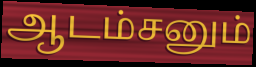
ஆடம்சனும்